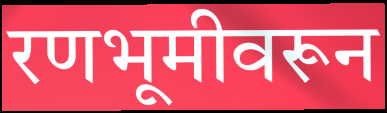
रणभूमीवरून